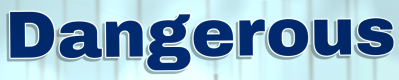
Dangerous